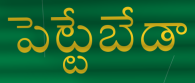
పెట్టేబేడా